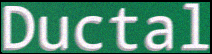
Ductal